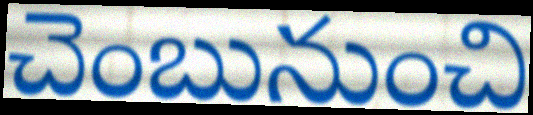
చెంబునుంచి